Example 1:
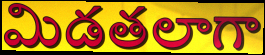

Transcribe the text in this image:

మిడతలాగా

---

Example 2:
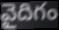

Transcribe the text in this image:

వైదిగం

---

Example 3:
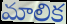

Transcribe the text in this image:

మాలిక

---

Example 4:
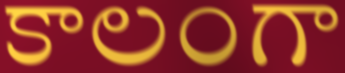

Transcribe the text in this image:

కాలంగా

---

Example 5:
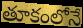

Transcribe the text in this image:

తూకంలోనే